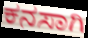
ಕನಸಾಗಿ